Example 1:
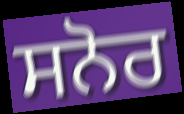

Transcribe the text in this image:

ਸਨੋਰ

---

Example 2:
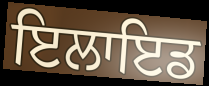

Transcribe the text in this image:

ਇਲਾਇਡ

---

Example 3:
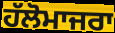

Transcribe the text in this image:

ਹੱਲੋਮਾਜਰਾ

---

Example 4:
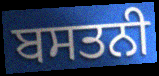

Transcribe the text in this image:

ਬਸਤਨੀ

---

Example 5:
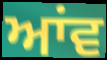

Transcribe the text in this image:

ਆਂਵ